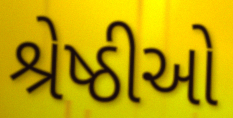
શ્રેષ્ઠીઓ